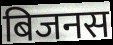
बिजनस